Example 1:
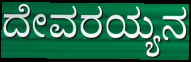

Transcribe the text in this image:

ದೇವರಯ್ಯನ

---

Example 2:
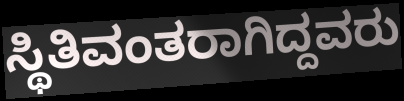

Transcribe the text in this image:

ಸ್ಥಿತಿವಂತರಾಗಿದ್ದವರು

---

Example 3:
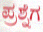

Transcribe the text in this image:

ಪ್ರಶ್ನೆಗ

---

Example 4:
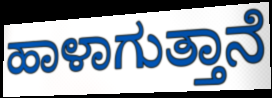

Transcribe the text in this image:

ಹಾಳಾಗುತ್ತಾನೆ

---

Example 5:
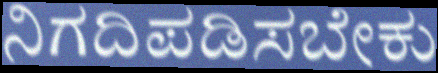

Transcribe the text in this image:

ನಿಗದಿಪಡಿಸಬೇಕು